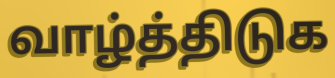
வாழ்த்திடுக